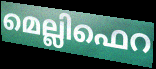
മെല്ലിഫെറ